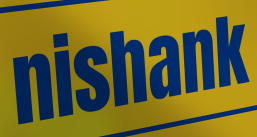
nishank